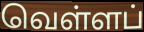
வெள்ளப்